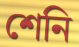
শেনি